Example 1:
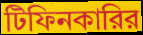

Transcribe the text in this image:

টিফিনকারির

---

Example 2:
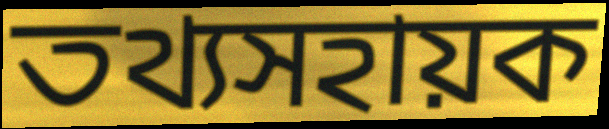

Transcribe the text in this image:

তথ্যসহায়ক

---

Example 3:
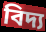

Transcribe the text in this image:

বিদ্য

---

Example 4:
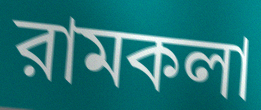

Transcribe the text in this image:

রামকলা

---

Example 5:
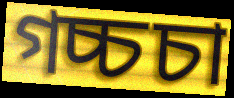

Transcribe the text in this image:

গচ্চচা